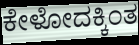
ಕೇಳೋದಕ್ಕಿಂತ